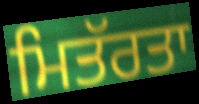
ਮਿਤੱਰਤਾ